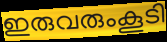
ഇരുവരുംകൂടി